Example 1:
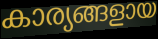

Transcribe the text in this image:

കാര്യങ്ങളായ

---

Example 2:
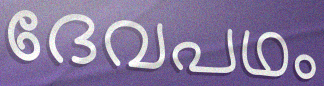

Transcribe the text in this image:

ദേവപഥം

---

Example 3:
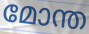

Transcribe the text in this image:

മോന്ത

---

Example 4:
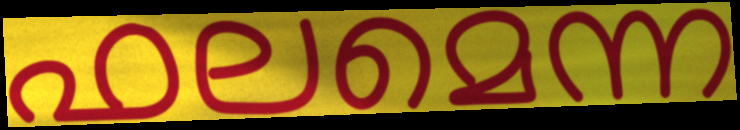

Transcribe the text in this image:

ഫലമെന്ന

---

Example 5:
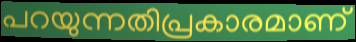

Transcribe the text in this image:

പറയുന്നതിപ്രകാരമാണ്